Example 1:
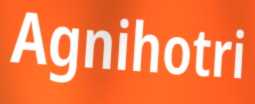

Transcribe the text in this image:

Agnihotri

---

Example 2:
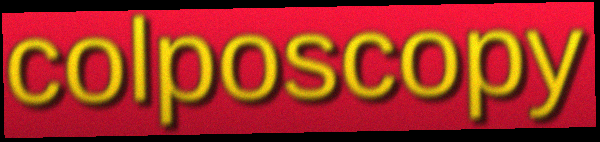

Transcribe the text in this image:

colposcopy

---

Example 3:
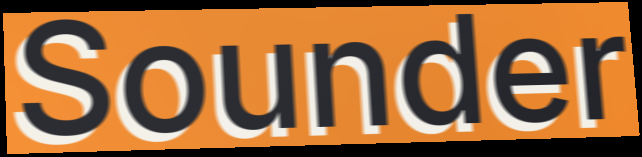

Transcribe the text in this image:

Sounder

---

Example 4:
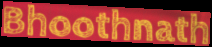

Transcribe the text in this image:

Bhoothnath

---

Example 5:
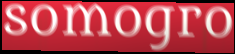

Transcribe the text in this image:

somogro